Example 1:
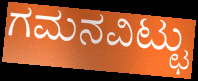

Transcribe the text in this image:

ಗಮನವಿಟ್ಟು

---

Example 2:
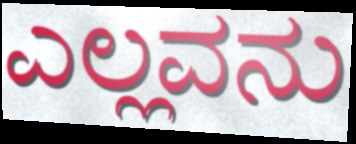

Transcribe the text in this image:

ಎಲ್ಲವನು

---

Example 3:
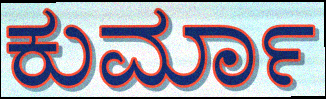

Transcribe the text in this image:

ಕುರ್ಮಾ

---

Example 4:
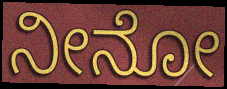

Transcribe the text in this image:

ನೀನೋ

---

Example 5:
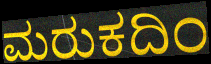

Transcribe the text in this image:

ಮರುಕದಿಂ